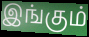
இங்கும்